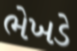
ભેખડે